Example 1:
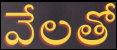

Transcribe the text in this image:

వేలతో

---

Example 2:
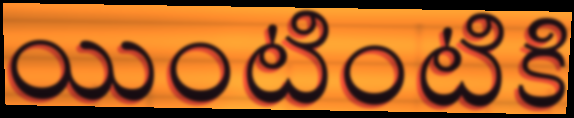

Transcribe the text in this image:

యింటింటికి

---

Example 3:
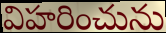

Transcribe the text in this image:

విహరించును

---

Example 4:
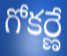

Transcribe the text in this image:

గోకర్ణే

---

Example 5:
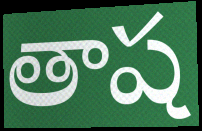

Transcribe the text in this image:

తాష